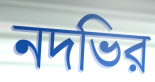
নদভির